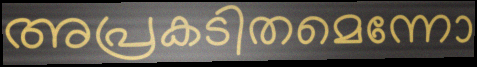
അപ്രകടിതമെന്നോ